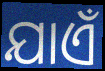
ଯାଏଁ